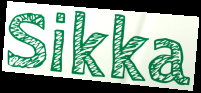
Sikka